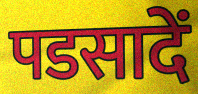
पडसादें